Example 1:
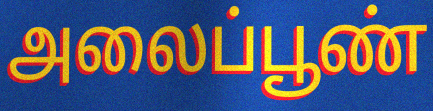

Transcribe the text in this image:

அலைப்பூண்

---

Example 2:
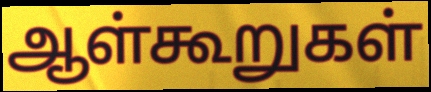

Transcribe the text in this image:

ஆள்கூறுகள்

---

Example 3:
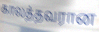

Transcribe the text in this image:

காலத்தவரான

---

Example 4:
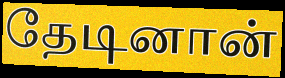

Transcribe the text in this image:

தேடினான்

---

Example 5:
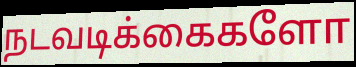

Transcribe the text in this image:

நடவடிக்கைகளோ